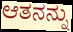
ಆತನನ್ನು